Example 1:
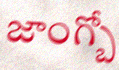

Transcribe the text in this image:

జాంగ్బో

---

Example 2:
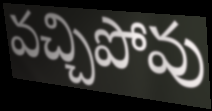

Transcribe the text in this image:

వచ్చిపోవు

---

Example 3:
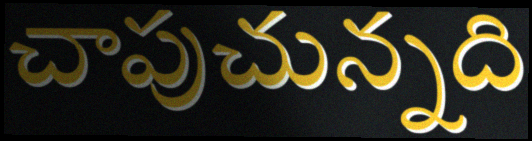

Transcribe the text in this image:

చాపుచున్నది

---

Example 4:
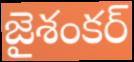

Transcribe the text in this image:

జైశంకర్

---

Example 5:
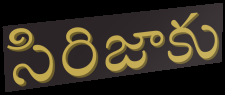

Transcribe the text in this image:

సిరిజాకు